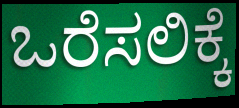
ಒರೆಸಲಿಕ್ಕೆ